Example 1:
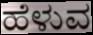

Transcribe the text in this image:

ಹೆಳುವ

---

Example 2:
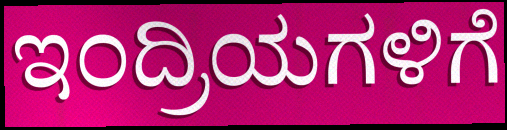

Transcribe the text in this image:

ಇಂದ್ರಿಯಗಳಿಗೆ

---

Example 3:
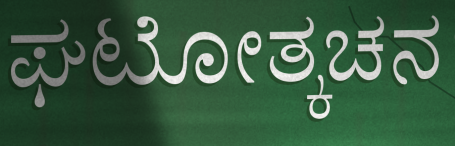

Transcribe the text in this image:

ಘಟೋತ್ಕಚನ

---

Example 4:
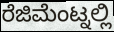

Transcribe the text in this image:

ರೆಜಿಮೆಂಟ್ನಲ್ಲಿ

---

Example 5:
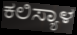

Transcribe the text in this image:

ಕಲಿಸ್ಯಾಳ